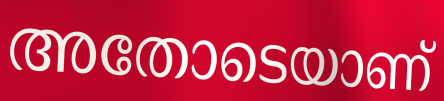
അതോടെയാണ്